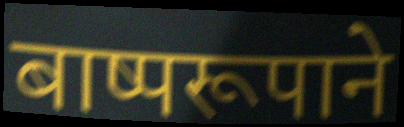
बाष्परूपाने